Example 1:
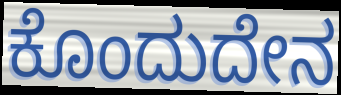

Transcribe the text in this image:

ಕೊಂದುದೇನ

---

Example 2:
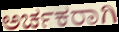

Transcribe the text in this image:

ಅರ್ಚಕರಾಗಿ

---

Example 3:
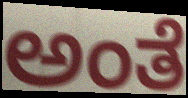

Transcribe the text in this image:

ಅಂತೆ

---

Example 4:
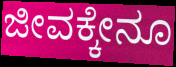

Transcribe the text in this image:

ಜೀವಕ್ಕೇನೂ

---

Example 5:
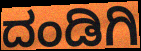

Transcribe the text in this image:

ದಂಡಿಗಿ